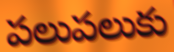
పలుపలుకు